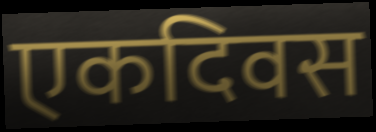
एकदिवस